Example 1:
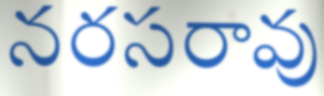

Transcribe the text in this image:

నరసరావు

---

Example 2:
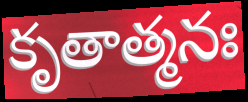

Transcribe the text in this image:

కృతాత్మనః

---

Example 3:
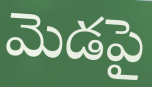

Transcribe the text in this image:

మెడపై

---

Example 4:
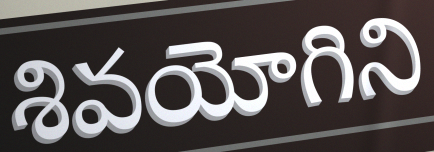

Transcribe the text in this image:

శివయోగిని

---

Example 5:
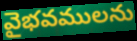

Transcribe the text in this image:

వైభవములను